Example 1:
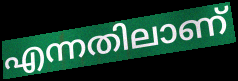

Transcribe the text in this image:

എന്നതിലാണ്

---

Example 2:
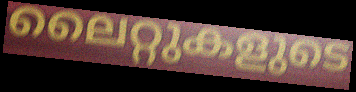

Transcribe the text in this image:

ലൈറ്റുകളുടെ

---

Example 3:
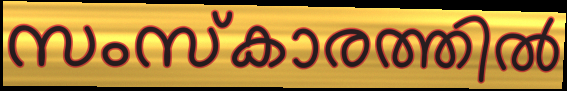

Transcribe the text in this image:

സംസ്കാരത്തിൽ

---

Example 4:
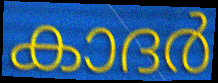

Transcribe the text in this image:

കാദർ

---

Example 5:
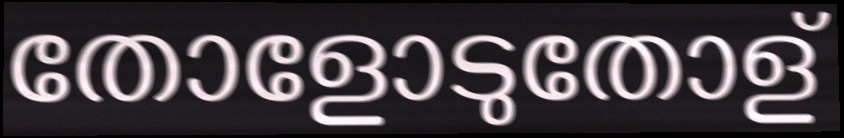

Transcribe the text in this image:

തോളോടുതോള്